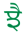
ਝੈ